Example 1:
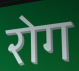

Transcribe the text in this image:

रोग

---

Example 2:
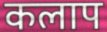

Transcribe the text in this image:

कलाप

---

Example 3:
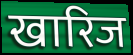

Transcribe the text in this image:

खारिज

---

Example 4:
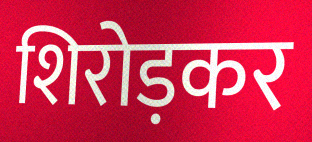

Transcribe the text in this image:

शिरोड़कर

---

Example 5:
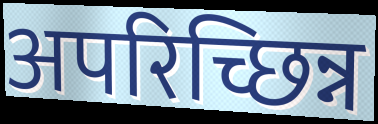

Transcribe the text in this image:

अपरिच्छिन्न